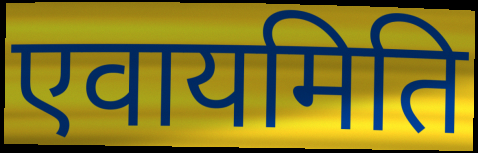
एवायमिति